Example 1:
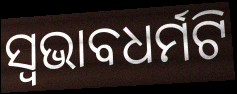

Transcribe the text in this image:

ସ୍ଵଭାବଧର୍ମଟି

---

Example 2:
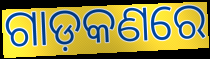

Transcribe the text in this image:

ଗାଡ଼କଣରେ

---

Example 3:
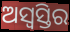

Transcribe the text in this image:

ଅସ୍ୱସ୍ତିର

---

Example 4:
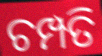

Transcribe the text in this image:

ଚମ୍ପତି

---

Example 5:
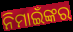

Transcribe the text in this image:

ନିମାଇଁଙ୍କର